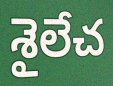
శైలేచ